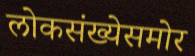
लोकसंख्येसमोर